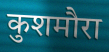
कुशमौरा